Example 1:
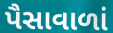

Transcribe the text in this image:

પૈસાવાળાં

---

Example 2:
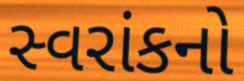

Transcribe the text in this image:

સ્વરાંકનો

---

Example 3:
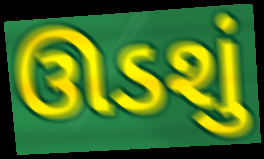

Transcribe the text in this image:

ઊડશું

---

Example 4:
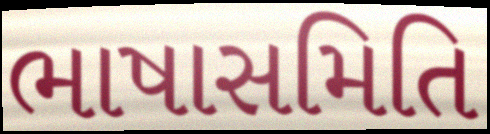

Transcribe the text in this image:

ભાષાસમિતિ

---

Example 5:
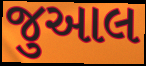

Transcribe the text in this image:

જુઆલ